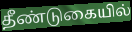
தீண்டுகையில்